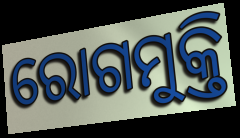
ରୋଗମୁକ୍ତି